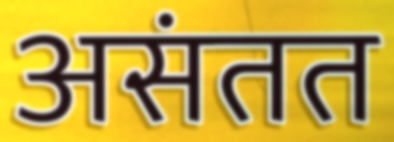
असंतत